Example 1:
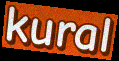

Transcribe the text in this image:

kural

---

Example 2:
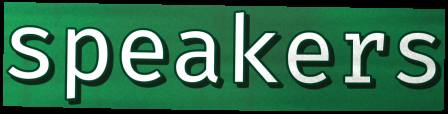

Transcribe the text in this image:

speakers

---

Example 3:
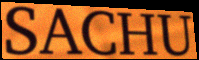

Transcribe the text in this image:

SACHU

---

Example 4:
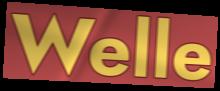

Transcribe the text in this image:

Welle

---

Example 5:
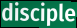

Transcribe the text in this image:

disciple